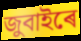
জুবাইৰে